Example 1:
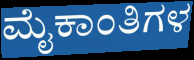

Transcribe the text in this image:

ಮೈಕಾಂತಿಗಳ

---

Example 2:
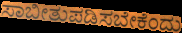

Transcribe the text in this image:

ಸಾಬೀತುಪಡಿಸಬೇಕೆಂದು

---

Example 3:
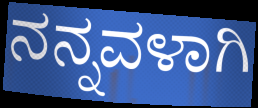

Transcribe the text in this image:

ನನ್ನವಳಾಗಿ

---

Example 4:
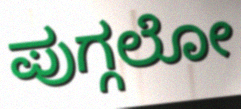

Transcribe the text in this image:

ಪುಗ್ಗಲೋ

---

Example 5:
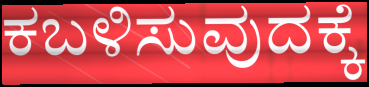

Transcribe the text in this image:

ಕಬಳಿಸುವುದಕ್ಕೆ